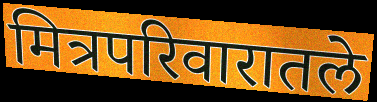
मित्रपरिवारातले